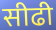
सीढी